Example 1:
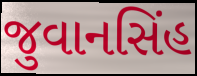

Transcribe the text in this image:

જુવાનસિંહ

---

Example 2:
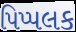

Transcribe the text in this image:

પિપ્પલક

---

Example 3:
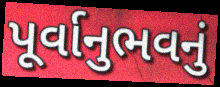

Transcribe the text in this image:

પૂર્વાનુભવનું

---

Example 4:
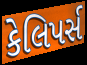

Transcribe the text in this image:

કેલિપર્સ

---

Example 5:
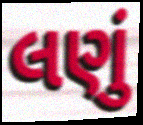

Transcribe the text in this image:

લણું